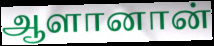
ஆளானான்